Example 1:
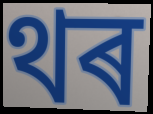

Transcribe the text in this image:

থৰ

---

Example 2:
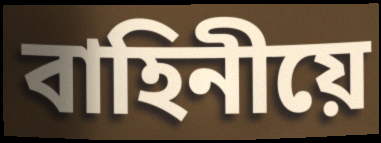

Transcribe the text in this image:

বাহিনীয়ে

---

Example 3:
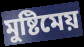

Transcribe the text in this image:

মুষ্টিমেয়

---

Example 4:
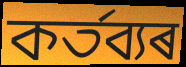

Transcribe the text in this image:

কৰ্তব্যৰ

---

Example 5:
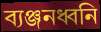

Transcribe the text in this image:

ব্যঞ্জনধ্বনি